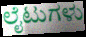
ಲೈಟುಗಳು